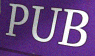
PUB